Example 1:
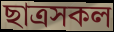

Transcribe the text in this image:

ছাত্ৰসকল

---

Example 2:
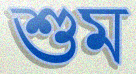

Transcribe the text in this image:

শুম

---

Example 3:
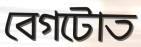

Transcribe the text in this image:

বেগটোত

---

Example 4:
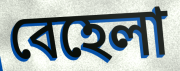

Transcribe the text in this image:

বেহেলা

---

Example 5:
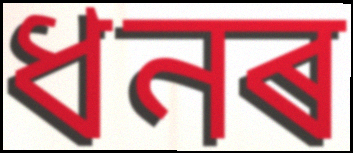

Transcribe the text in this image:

ধনৰ